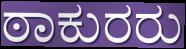
ಠಾಕುರರು